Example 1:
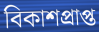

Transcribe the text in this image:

বিকাশপ্রাপ্ত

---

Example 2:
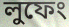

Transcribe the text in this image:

লুফেং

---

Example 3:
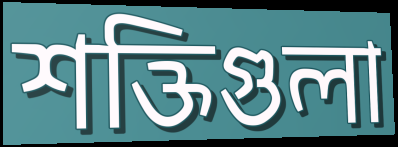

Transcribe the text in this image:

শক্তিগুলা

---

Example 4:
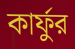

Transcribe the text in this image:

কার্ফুর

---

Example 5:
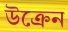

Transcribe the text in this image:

উক্রেন